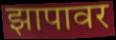
झापावर